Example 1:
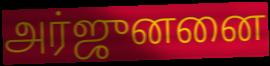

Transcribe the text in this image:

அர்ஜுனனை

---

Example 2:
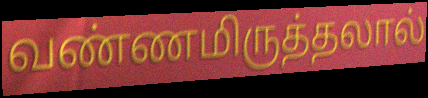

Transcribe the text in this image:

வண்ணமிருத்தலால்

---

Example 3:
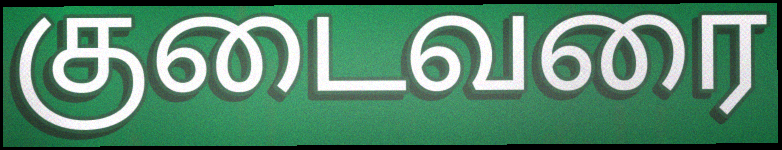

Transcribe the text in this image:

குடைவரை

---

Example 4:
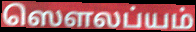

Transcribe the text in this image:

ஸௌலப்யம்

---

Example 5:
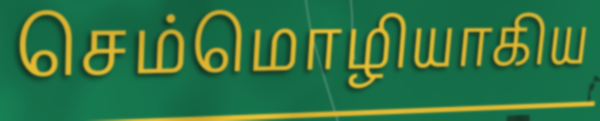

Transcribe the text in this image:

செம்மொழியாகிய